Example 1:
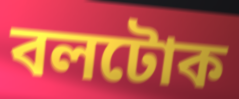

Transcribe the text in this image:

বলটোক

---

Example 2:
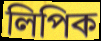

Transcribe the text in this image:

লিপিক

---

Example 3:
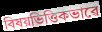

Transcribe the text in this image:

বিষয়ভিত্তিকভাৱে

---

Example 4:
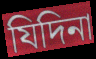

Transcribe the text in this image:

যিদিনা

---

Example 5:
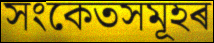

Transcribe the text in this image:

সংকেতসমূহৰ